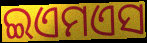
ଇଏମଏସ